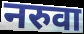
नरुवा